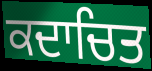
ਕਦਾਚਿਤ